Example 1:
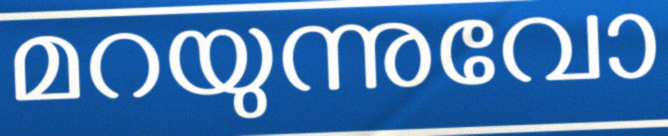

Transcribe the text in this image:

മറയുന്നുവോ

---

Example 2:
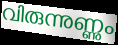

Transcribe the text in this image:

വിരുന്നുണ്ണും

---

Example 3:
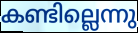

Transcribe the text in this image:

കണ്ടില്ലെന്നു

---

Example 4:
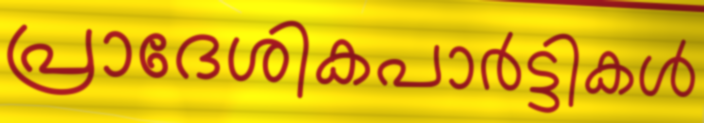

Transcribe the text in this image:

പ്രാദേശികപാർട്ടികൾ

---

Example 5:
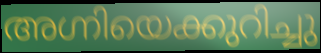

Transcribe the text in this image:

അഗ്നിയെക്കുറിച്ചു